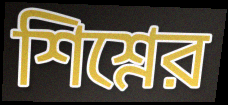
শিশ্নের